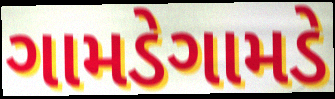
ગામડેગામડે